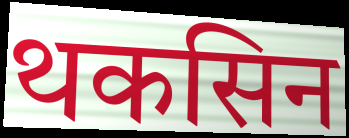
थकसिन